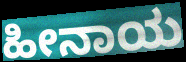
ಹೀನಾಯ